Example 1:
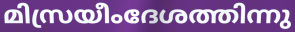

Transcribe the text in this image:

മിസ്രയീംദേശത്തിന്നു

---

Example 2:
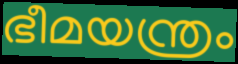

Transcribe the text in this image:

ഭീമയന്ത്രം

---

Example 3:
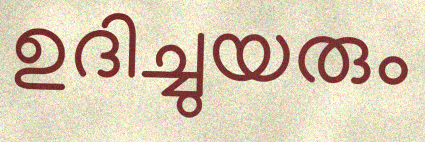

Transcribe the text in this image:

ഉദിച്ചുയരും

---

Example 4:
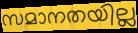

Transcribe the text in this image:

സമാനതയില്ല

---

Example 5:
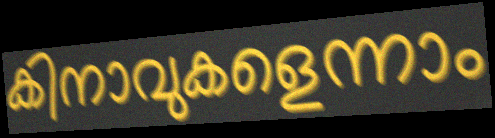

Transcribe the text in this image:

കിനാവുകളെന്നാം